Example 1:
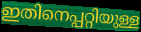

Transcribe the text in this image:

ഇതിനെപ്പറ്റിയുള്ള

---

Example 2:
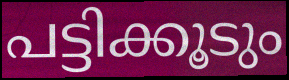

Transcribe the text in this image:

പട്ടിക്കൂടും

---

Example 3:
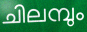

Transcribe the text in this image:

ചിലമ്പും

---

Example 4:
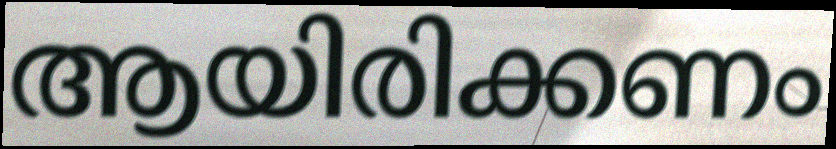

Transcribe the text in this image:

ആയിരിക്കണം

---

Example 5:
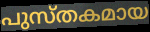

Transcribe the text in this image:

പുസ്തകമായ